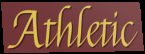
Athletic